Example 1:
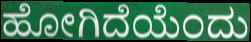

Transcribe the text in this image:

ಹೋಗಿದೆಯೆಂದು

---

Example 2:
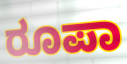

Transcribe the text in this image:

ರೂಪಾ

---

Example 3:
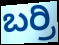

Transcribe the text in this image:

ಬರ್ರಿ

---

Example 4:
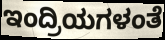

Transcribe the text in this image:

ಇಂದ್ರಿಯಗಳಂತೆ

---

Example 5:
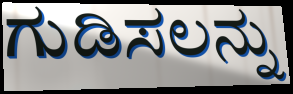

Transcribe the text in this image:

ಗುಡಿಸಲನ್ನು